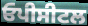
ਓਪੀਸੀਟਲ